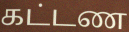
கட்டண